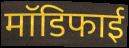
मॉडिफाई